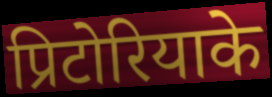
प्रिटोरियाके